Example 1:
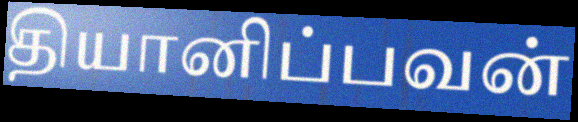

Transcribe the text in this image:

தியானிப்பவன்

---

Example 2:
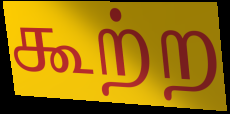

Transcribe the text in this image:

கூற்ற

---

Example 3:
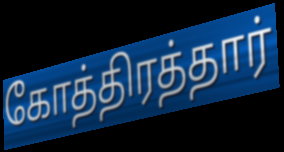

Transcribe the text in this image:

கோத்திரத்தார்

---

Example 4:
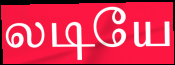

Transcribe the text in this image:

லடியே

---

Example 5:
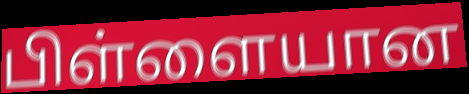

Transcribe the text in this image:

பிள்ளையான